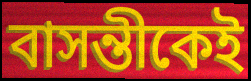
বাসন্তীকেই